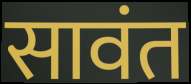
सावंत